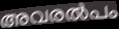
അവരൽപം